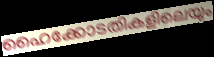
ഹൈക്കോടതികളിലെയും